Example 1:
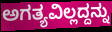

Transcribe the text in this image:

ಅಗತ್ಯವಿಲ್ಲದ್ದನ್ನು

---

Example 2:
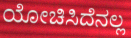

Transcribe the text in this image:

ಯೋಚಿಸಿದೆನಲ್ಲ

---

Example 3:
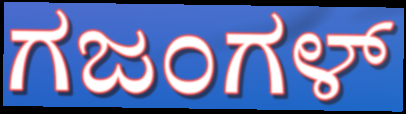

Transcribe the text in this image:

ಗಜಂಗಳ್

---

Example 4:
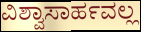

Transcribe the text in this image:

ವಿಶ್ವಾಸಾರ್ಹವಲ್ಲ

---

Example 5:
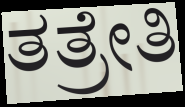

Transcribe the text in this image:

ತತ್ರೇತಿ